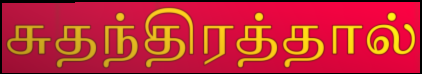
சுதந்திரத்தால்